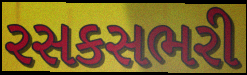
રસકસભરી